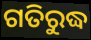
ଗତିରୁଦ୍ଧ